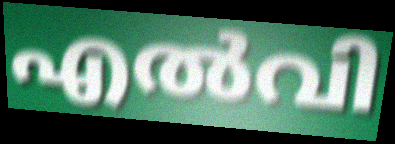
എൽവി